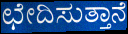
ಛೇದಿಸುತ್ತಾನೆ